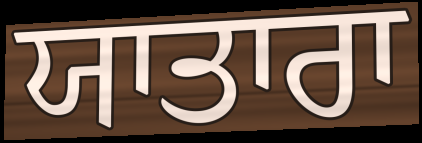
ਯਾਤਾਰਾ